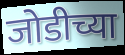
जोडीच्या